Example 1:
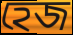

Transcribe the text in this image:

হেজ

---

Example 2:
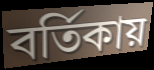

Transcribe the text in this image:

বর্তিকায়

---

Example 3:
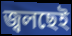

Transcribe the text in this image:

জ্বলছেই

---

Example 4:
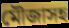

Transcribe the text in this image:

মৌজাসহ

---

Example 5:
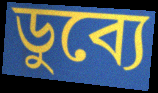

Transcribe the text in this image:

ডুব্যে